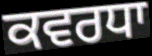
ਕਵਰਧਾ